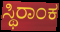
ಸ್ಥಿರಾಂಕ